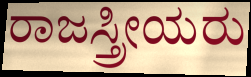
ರಾಜಸ್ತ್ರೀಯರು